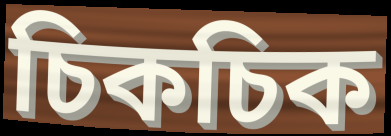
চিকচিক